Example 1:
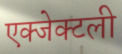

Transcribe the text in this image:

एक्जेक्टली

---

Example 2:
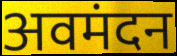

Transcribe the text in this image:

अवमंदन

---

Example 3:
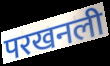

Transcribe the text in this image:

परखनली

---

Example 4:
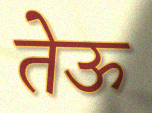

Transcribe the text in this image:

तेऊ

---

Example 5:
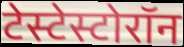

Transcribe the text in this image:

टेस्टेस्टोरॉन